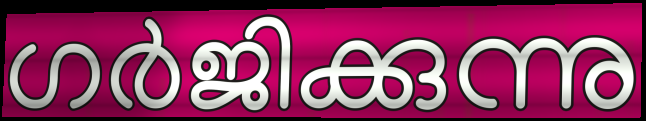
ഗർജിക്കുന്നു